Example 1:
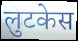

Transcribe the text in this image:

लुटकेस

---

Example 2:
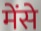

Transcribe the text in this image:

मेंसे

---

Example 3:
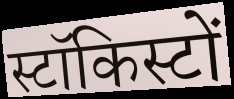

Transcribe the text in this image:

स्टॉकिस्टों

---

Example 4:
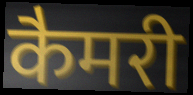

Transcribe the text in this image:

कैमरी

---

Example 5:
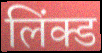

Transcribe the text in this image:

लिंक्ड